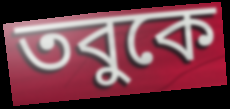
তবুকে